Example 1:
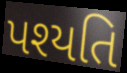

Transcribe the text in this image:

પશ્યતિ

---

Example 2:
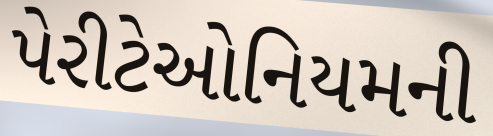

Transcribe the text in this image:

પેરીટેઓનિયમની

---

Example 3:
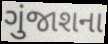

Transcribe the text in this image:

ગુંજાશના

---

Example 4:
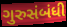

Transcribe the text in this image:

ગુરુસંબંધી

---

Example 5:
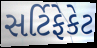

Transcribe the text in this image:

સર્ટિફેકેટ